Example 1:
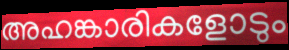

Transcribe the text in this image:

അഹങ്കാരികളോടും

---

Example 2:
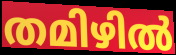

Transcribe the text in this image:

തമിഴിൽ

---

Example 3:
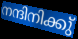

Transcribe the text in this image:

നന്ദിനിക്കു്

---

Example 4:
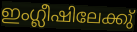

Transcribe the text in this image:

ഇംഗ്ലീഷിലേക്കു്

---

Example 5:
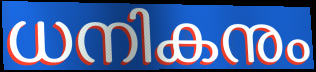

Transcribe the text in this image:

ധനികനും